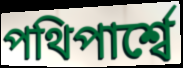
পথিপার্শ্বে